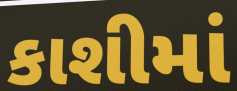
કાશીમાં